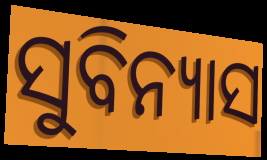
ସୁବିନ୍ୟାସ